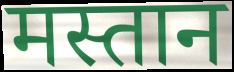
मस्तान